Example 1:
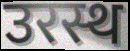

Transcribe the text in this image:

उरस्थ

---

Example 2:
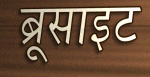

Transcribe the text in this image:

ब्रूसाइट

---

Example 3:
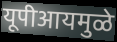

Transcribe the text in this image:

यूपीआयमुळे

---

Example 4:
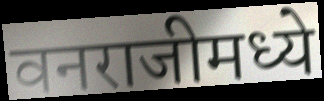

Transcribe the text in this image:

वनराजीमध्ये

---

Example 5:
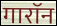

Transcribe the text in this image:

गारॉन